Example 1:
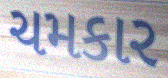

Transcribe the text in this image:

ચમકાર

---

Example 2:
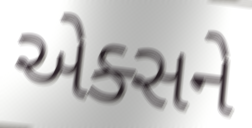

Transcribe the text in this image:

એક્સને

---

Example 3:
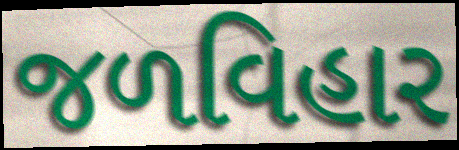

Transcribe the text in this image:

જળવિહાર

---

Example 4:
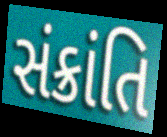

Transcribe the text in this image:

સંક્રાંતિ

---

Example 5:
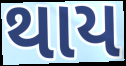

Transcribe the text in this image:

થાય